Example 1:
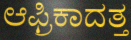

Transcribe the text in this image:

ಆಫ್ರಿಕಾದತ್ತ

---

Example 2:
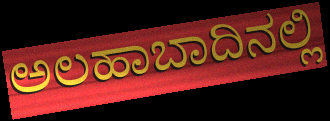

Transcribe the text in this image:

ಅಲಹಾಬಾದಿನಲ್ಲಿ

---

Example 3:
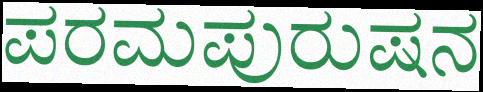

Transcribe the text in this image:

ಪರಮಪುರುಷನ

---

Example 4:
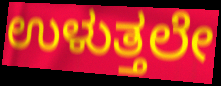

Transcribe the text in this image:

ಉಳುತ್ತಲೇ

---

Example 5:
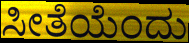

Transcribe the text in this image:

ಸೀತೆಯೆಂದು